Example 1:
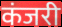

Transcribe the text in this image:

कंजरी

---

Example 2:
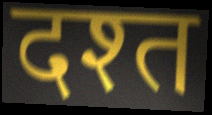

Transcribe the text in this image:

दश्त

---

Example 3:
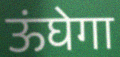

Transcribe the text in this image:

ऊंघेगा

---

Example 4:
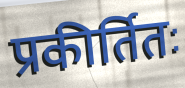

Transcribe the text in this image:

प्रकीर्तितः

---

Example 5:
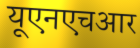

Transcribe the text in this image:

यूएनएचआर